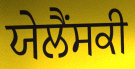
ਯੇਲੈਂਸਕੀ